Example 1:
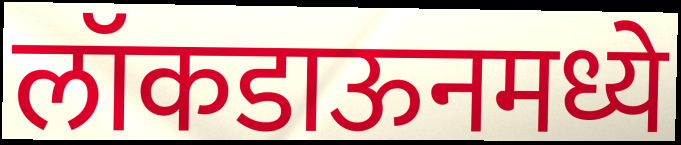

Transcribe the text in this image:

लॉकडाऊनमध्ये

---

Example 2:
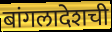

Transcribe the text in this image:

बांगलादेशची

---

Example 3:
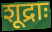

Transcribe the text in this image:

शूद्राः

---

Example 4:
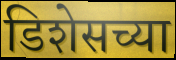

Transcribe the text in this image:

डिशेसच्या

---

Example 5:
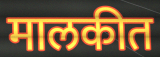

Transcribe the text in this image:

मालकीत